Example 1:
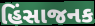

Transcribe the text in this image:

હિંસાજનક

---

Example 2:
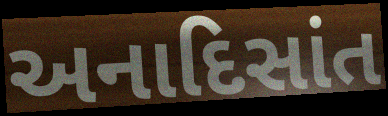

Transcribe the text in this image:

અનાદિસાંત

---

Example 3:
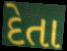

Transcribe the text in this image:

દેતા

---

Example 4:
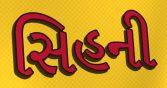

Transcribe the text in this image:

સિહની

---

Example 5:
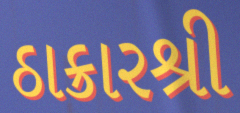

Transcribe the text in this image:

ઠાક્રારશ્રી